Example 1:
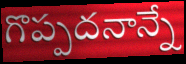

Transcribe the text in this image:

గొప్పదనాన్నే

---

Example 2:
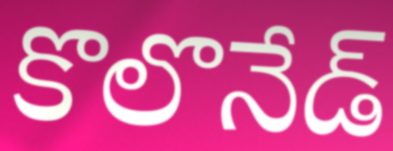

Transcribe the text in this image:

కొలొనేడ్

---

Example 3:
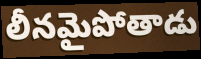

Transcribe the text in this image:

లీనమైపోతాడు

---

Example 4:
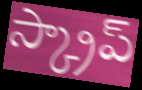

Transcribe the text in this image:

స్క్రాప్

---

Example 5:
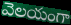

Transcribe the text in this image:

వెలయంగా